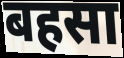
बहसा